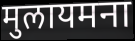
मुलायमना